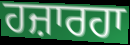
ਹਜ਼ਾਰਹਾ